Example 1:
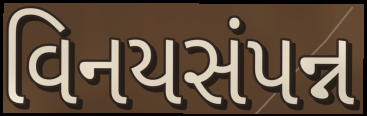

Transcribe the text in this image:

વિનયસંપન્ન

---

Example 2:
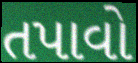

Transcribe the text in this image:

તપાવો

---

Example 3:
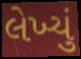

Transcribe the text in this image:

લેખ્યું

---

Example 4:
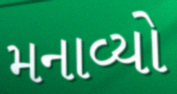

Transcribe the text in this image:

મનાવ્યો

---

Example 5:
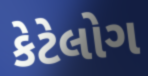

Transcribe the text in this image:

કેટેલોગ